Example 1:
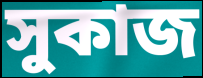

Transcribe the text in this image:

সুকাজ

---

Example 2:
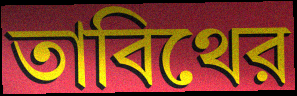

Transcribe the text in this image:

তাবিথের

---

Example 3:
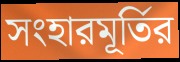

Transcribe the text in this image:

সংহারমূর্তির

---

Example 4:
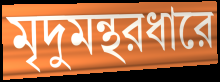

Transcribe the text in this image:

মৃদুমন্থরধারে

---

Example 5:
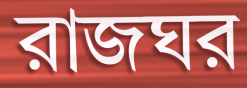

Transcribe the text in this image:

রাজঘর